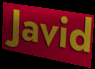
Javid